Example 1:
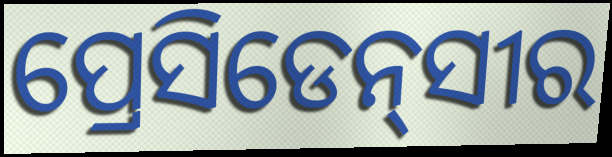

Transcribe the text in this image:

ପ୍ରେସିଡେନ୍‌ସୀର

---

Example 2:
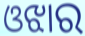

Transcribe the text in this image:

ଓଝାର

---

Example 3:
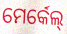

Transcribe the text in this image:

ମେର୍କେଲ୍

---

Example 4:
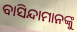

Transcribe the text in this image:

ବାସିନ୍ଦାମାନଙ୍କୁ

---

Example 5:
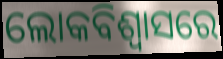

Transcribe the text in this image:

ଲୋକବିଶ୍ୱାସରେ